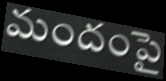
మందంపై